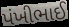
પંખીભાઈ